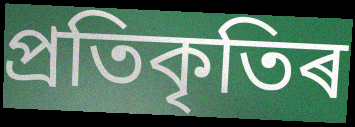
প্ৰতিকৃতিৰ